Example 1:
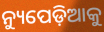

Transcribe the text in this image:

ନ୍ୟୁପେଡ଼ିଆକୁ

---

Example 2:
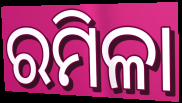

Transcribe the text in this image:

ରମିଳା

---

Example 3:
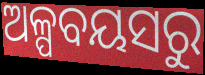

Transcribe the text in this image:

ଅଳ୍ପବୟସରୁ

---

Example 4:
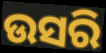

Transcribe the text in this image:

ଉସରି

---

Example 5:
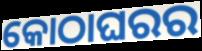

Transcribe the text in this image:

କୋଠାଘରର